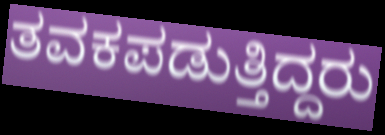
ತವಕಪಡುತ್ತಿದ್ದರು